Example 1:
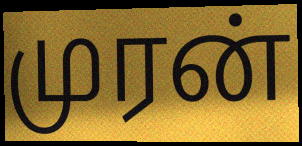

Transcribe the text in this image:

முரன்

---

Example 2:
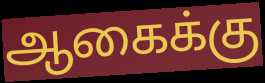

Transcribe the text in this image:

ஆகைக்கு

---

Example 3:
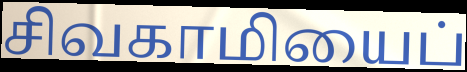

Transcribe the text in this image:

சிவகாமியைப்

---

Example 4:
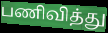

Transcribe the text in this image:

பணிவித்து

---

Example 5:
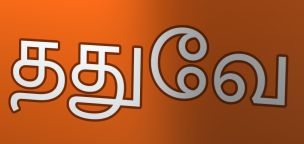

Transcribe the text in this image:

ததுவே